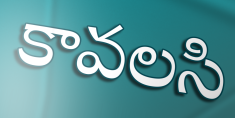
కావలసి